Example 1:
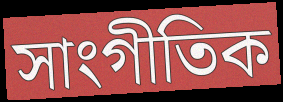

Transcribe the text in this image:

সাংগীতিক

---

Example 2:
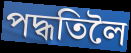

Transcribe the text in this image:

পদ্ধতিলৈ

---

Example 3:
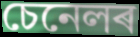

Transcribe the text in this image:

চেনেলৰ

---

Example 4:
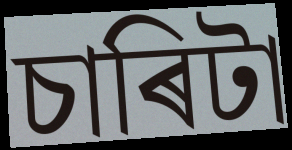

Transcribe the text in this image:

চাৰিটা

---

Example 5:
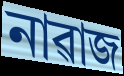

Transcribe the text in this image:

নাৱাজ